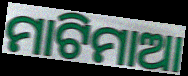
ମାଟିମାଆ